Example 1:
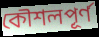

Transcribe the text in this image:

কৌশলপূৰ্ণ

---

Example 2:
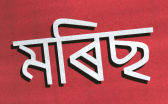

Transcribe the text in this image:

মৰিছ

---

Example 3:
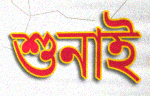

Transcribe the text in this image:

শুনাই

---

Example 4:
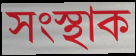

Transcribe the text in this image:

সংস্থাক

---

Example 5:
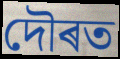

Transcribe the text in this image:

দৌৰত